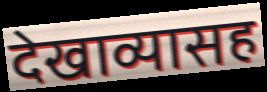
देखाव्यासह